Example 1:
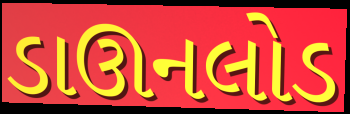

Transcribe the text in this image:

ડાઊનલોડ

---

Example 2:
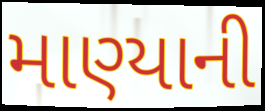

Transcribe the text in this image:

માણ્યાની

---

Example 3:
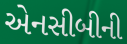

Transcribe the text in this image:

એનસીબીની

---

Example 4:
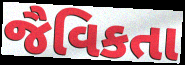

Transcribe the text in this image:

જૈવિકતા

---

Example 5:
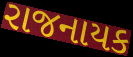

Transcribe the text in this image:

રાજનાયક